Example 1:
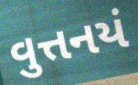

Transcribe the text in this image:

વુત્તનયં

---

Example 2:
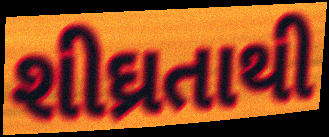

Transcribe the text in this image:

શીઘ્રતાથી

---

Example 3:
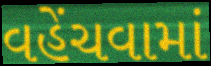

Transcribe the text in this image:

વહેંચવામાં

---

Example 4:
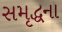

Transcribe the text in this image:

સમૃદ્ધના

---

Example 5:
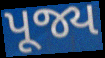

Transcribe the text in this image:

પૂજ્ય